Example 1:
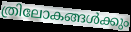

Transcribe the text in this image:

ത്രിലോകങ്ങൾക്കും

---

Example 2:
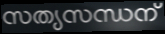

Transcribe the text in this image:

സത്യസന്ധന്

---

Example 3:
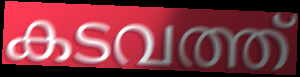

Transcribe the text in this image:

കടവത്ത്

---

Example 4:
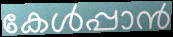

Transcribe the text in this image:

കേൾപ്പാൻ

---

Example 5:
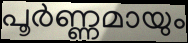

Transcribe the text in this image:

പൂർണ്ണമായും